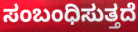
ಸಂಬಂಧಿಸುತ್ತದೆ